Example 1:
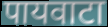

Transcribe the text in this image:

पायवाटा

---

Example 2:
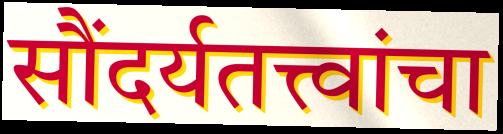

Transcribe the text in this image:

सौंदर्यतत्त्वांचा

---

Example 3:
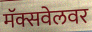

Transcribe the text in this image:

मॅक्सवेलवर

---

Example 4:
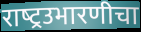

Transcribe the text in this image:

राष्ट्रउभारणीचा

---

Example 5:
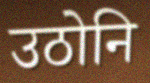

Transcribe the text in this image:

उठोनि